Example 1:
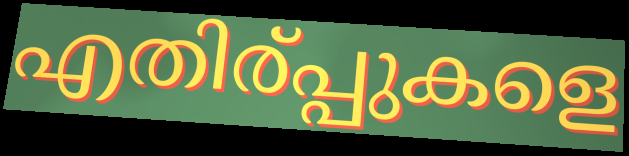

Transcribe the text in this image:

എതിര്പ്പുകളെ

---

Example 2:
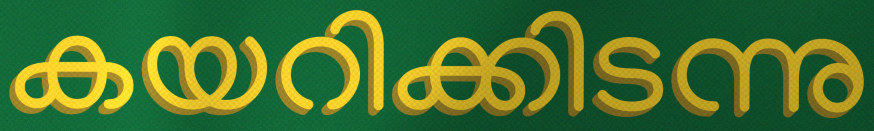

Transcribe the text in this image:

കയറിക്കിടന്നു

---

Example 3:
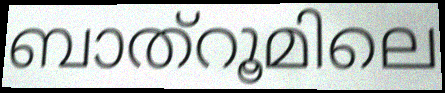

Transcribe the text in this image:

ബാത്റൂമിലെ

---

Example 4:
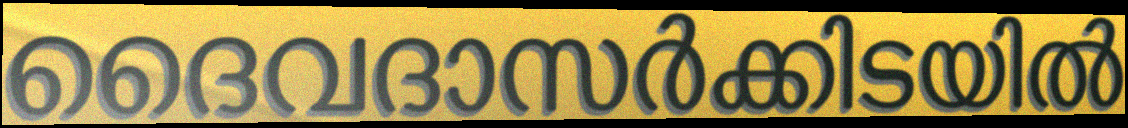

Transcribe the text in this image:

ദൈവദാസർക്കിടയിൽ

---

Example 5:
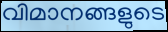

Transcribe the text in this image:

വിമാനങ്ങളുടെ